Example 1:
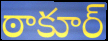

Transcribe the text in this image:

ఠాకూర్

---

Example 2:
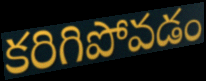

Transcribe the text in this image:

కరిగిపోవడం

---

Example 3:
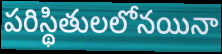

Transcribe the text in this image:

పరిస్థితులలోనయినా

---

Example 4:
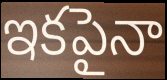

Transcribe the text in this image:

ఇకపైనా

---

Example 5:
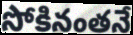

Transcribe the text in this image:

సోకినంతనే